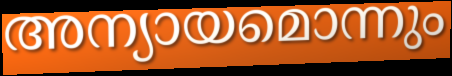
അന്യായമൊന്നും